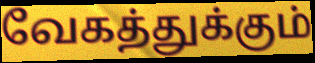
வேகத்துக்கும்